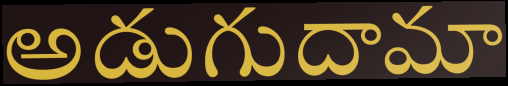
అడుగుదామా